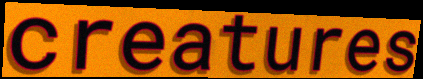
creatures